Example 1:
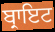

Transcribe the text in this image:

ਬ੍ਰਾਇਟ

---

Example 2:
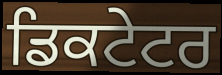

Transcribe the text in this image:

ਡਿਕਟੇਟਰ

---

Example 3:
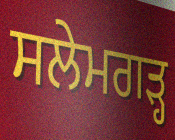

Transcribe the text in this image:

ਸਲੇਮਗੜ੍ਹ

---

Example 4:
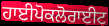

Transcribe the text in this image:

ਹਾਈਪੋਕਲੋਰਾਈਟ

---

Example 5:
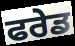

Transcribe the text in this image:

ਫਰੇਡ